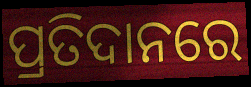
ପ୍ରତିଦାନରେ